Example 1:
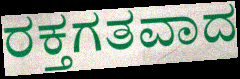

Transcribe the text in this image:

ರಕ್ತಗತವಾದ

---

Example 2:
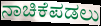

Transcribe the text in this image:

ನಾಚಿಕೆಪಡಲು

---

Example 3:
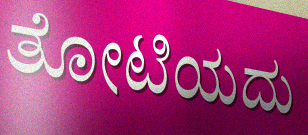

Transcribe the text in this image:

ತೋಟಿಯದು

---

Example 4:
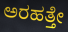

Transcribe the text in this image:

ಅರಹತ್ತೇ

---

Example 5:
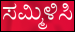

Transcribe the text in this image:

ಸಮ್ಮಿಳಿಸಿ